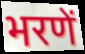
भरणें